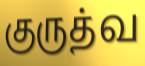
குருத்வ